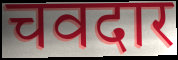
चवदार